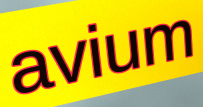
avium